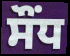
ਸੌਂਧ